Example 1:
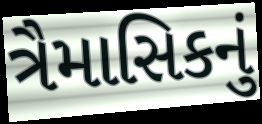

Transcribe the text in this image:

ત્રૈમાસિકનું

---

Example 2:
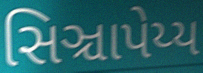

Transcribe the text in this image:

સિઞ્ચાપેય્ય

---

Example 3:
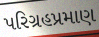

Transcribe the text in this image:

પરિગ્રહપ્રમાણ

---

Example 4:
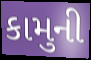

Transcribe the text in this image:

કામુની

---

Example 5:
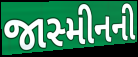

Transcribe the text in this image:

જાસ્મીનની